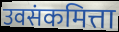
उवसंकमित्ता